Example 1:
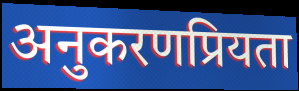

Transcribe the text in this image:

अनुकरणप्रियता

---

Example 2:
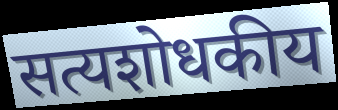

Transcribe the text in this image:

सत्यशोधकीय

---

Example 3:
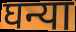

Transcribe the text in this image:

घन्या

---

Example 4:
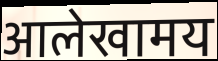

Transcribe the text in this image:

आलेखामय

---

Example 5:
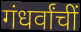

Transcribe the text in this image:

गंधर्वांचीं